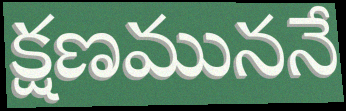
క్షణముననే